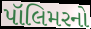
પૉલિમરનો